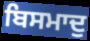
ਬਿਸਮਾਦੁ